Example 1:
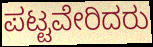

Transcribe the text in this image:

ಪಟ್ಟವೇರಿದರು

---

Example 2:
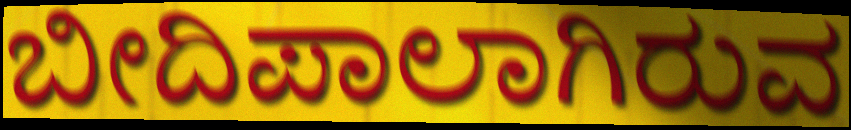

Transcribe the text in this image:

ಬೀದಿಪಾಲಾಗಿರುವ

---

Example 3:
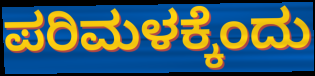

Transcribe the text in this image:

ಪರಿಮಳಕ್ಕೆಂದು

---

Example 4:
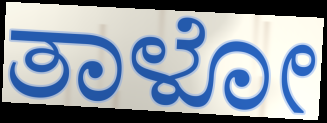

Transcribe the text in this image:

ತಾಳೋ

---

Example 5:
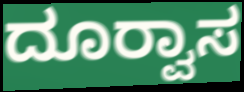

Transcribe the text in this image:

ದೂರ‍್ವಾಸ